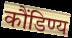
कौंडिण्य